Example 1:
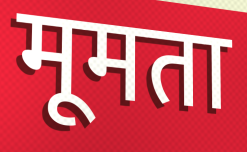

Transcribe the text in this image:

मूमता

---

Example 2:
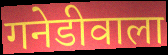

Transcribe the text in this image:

गनेडीवाला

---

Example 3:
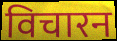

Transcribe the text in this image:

विचारन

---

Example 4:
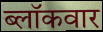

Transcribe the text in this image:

ब्लॉकवार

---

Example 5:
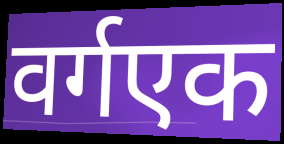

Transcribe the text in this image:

वर्गएक